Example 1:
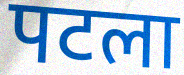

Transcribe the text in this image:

पटला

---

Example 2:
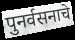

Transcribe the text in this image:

पुनर्वसनाचे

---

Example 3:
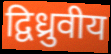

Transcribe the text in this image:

द्विध्रुवीय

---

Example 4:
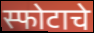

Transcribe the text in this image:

स्फोटाचे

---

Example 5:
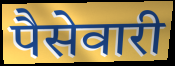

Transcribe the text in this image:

पैसेवारी